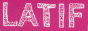
LATIF